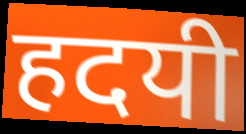
हदयी